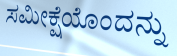
ಸಮೀಕ್ಷೆಯೊಂದನ್ನು